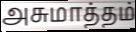
அசுமாத்தம்